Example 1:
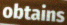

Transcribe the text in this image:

obtains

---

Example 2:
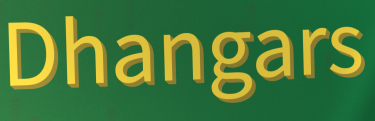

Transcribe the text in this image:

Dhangars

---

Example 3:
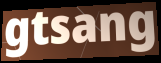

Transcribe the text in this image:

gtsang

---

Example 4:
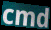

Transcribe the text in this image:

cmd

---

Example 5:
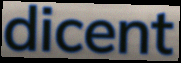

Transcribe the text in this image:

dicent